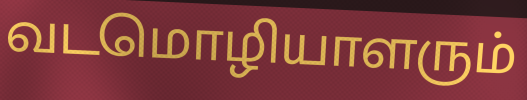
வடமொழியாளரும்